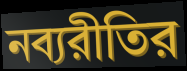
নব্যরীতির